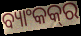
ବ୍ୟାଂକକ୍‍ର